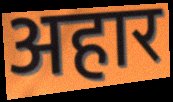
अहार